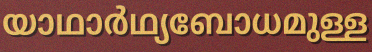
യാഥാർഥ്യബോധമുള്ള